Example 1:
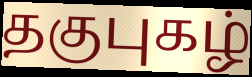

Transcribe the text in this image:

தகுபுகழ்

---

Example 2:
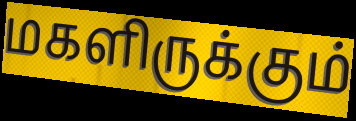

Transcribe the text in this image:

மகளிருக்கும்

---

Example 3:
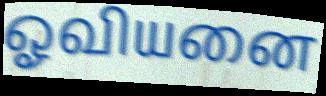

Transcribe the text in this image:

ஓவியனை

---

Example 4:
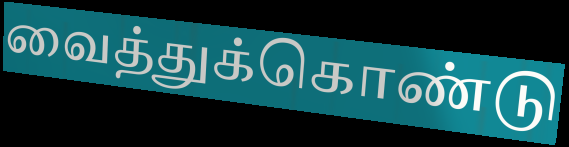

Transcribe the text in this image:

வைத்துக்கொண்டு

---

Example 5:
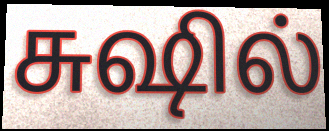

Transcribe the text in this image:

சுஷில்